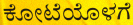
ಕೋಟೆಯೊಳಗೆ